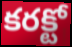
కరక్టో